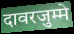
दावरजुम्मे